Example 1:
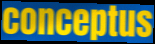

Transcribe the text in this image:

conceptus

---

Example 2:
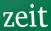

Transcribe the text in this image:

zeit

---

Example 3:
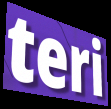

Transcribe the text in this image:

teri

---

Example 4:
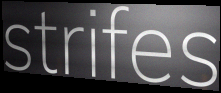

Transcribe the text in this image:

strifes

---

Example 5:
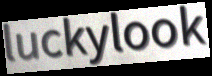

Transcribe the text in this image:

luckylook